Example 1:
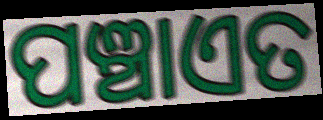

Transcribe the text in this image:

ପଞ୍ଚାଏତ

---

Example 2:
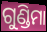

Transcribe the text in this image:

ଗୁଣ୍ଡିମା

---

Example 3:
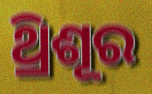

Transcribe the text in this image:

ଥ୍ରିଶୂର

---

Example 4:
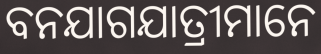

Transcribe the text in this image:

ବନଯାଗଯାତ୍ରୀମାନେ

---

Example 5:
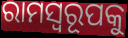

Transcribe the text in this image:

ରାମସ୍ୱରୂପକୁ